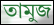
তামুজ